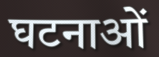
घटनाओं